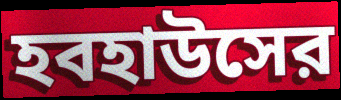
হবহাউসের